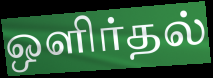
ஒளிர்தல்